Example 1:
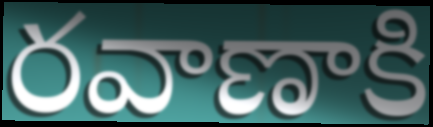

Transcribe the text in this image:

రవాణాకి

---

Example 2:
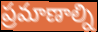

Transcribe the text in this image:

ప్రమాణాల్ని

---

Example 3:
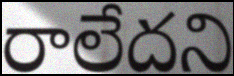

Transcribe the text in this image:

రాలేదని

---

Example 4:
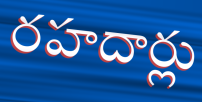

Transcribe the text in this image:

రహదార్లు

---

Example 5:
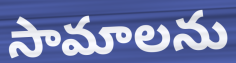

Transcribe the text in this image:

సామాలను